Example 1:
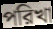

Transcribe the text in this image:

পরিখা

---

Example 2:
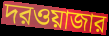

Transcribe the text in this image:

দরওয়াজার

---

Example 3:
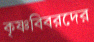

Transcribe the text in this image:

কৃষ্ণবিবরদের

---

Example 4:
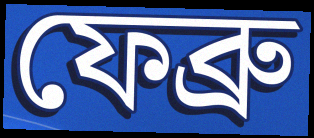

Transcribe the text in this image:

ফেব্রু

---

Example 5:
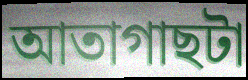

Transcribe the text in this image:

আতাগাছটা